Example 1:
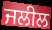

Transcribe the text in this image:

ਜਲੀਲ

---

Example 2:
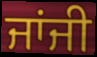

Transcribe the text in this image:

ਜਾਂਜੀ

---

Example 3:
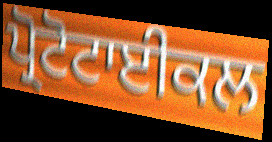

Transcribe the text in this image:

ਪ੍ਰੋਟੋਟਾਈਕਲ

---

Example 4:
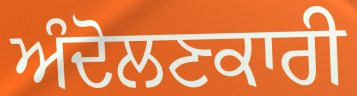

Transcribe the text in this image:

ਅੰਦੋਲਣਕਾਰੀ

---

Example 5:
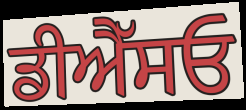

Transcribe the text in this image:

ਡੀਐੱਸਓ